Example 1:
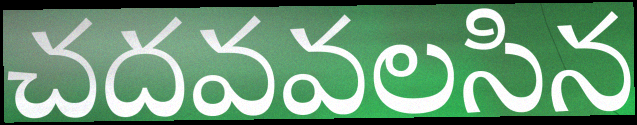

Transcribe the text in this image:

చదవవలసిన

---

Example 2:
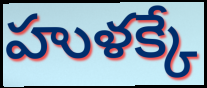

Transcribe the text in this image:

హుళక్కే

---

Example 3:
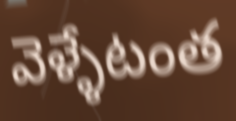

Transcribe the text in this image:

వెళ్ళేటంత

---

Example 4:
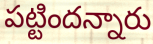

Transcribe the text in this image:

పట్టిందన్నారు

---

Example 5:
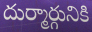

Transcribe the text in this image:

దుర్మార్గునికి